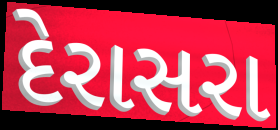
દેરાસરા